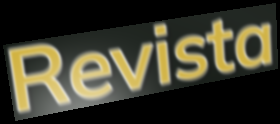
Revista